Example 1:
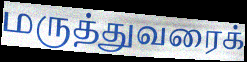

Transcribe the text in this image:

மருத்துவரைக்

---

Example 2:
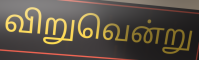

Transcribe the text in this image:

விறுவென்று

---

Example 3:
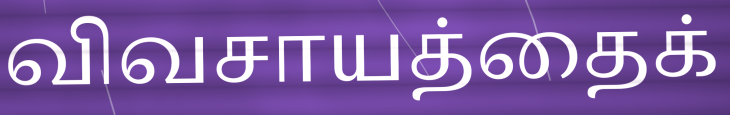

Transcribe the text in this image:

விவசாயத்தைக்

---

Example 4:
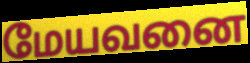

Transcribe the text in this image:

மேயவனை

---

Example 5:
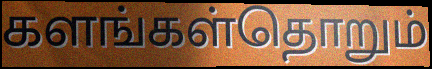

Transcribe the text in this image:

களங்கள்தொறும்